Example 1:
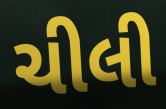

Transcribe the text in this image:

ચીલી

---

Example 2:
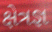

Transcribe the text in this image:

ક્ષેત્રજ્ઞ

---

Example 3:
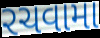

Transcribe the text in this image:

રચવામા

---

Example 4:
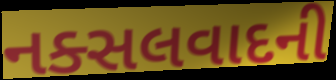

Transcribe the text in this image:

નક્સલવાદની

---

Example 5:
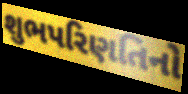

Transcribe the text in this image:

શુભપરિણતિનો